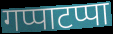
गप्पाटप्पा